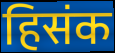
हिसंक